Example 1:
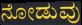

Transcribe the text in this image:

ನೋಡುವು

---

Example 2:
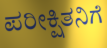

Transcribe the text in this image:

ಪರೀಕ್ಷಿತನಿಗೆ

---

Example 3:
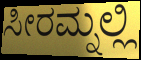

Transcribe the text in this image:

ಸೀರಮ್ನಲ್ಲಿ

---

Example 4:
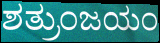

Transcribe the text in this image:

ಶತ್ರುಂಜಯಂ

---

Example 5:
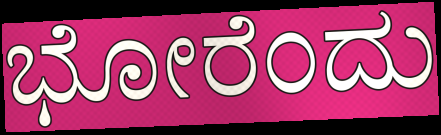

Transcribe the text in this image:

ಭೋರೆಂದು